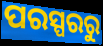
ପରସ୍ପରରୁ